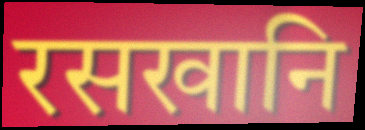
रसखानि